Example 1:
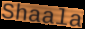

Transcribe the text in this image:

Shaala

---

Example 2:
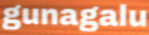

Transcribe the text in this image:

gunagalu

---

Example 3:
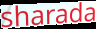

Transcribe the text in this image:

sharada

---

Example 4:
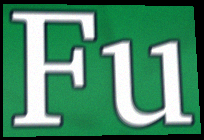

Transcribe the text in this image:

Fu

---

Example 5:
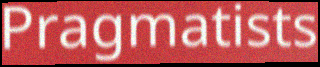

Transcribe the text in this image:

Pragmatists